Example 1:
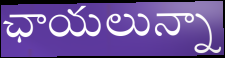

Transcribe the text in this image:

ఛాయలున్నా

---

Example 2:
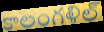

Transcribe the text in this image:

కాలంగళిల్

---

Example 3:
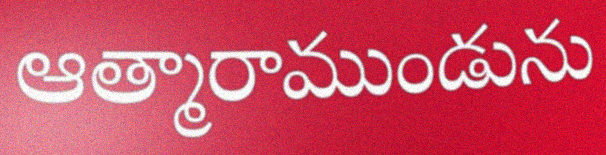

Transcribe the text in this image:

ఆత్మారాముండును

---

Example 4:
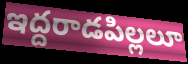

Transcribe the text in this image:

ఇద్దరాడపిల్లలూ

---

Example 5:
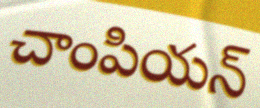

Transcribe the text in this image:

చాంపియన్